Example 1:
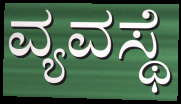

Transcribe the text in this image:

ವ್ಯವಸ್ಥೆ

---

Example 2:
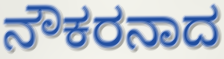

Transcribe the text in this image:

ನೌಕರನಾದ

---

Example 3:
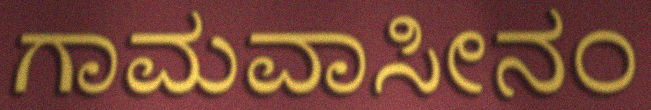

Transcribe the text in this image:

ಗಾಮವಾಸೀನಂ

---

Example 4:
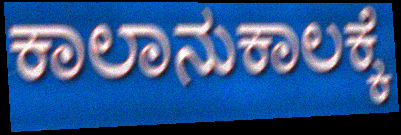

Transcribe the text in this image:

ಕಾಲಾನುಕಾಲಕ್ಕೆ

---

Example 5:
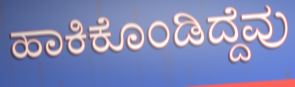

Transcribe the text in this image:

ಹಾಕಿಕೊಂಡಿದ್ದೆವು